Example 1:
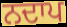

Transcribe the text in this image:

ਨਦਾਪ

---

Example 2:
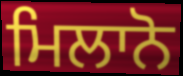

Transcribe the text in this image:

ਮਿਲਾਨੋ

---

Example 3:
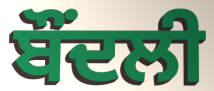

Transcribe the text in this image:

ਬੌਂਦਲੀ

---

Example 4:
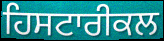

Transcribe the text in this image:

ਹਿਸਟਾਰੀਕਲ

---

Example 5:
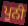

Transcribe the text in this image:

ਪੂਨੀ